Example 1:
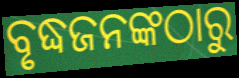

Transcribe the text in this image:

ବୃଦ୍ଧଜନଙ୍କଠାରୁ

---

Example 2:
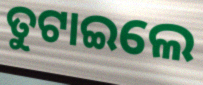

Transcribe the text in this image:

ତୁଟାଇଲେ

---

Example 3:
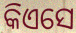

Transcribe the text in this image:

କିଏସେ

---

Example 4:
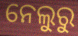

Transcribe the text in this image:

ନେଲୁରୁ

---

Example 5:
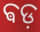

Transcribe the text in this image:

ଵଡ଼